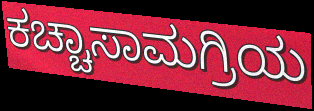
ಕಚ್ಚಾಸಾಮಗ್ರಿಯ